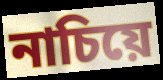
নাচিয়ে